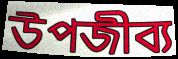
উপজীব্য